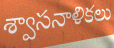
శ్వాసనాళికలు